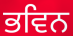
ਭਵਿਨ